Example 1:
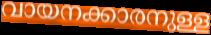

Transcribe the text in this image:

വായനക്കാരനുള്ള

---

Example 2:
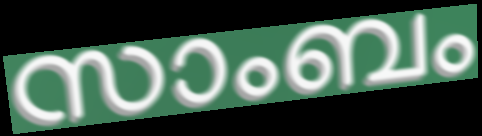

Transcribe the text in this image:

സാംബം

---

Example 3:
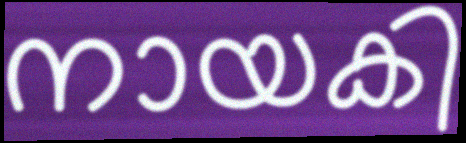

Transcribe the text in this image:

നായകി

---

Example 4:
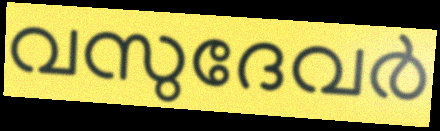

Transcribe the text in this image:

വസുദേവർ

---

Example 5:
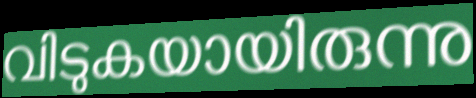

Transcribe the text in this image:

വിടുകയായിരുന്നു